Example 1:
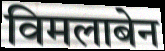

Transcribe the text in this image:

विमलाबेन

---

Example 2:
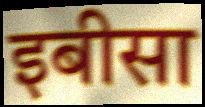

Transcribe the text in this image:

इबीसा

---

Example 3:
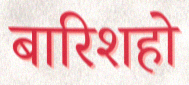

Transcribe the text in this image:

बारिशहो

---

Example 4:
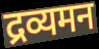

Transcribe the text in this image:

द्रव्यमन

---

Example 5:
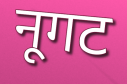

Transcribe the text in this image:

नूगट